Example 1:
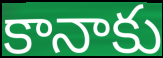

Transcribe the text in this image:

కానాకు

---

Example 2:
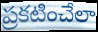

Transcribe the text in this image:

ప్రకటించేలా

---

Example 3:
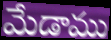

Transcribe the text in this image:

మేడాము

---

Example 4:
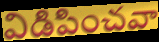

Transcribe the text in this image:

విడిపించవా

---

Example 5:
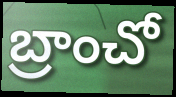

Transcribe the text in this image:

బ్రాంచో